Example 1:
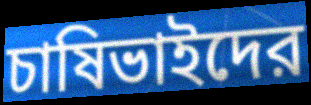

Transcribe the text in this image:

চাষিভাইদের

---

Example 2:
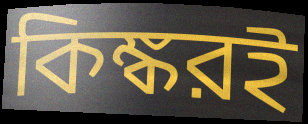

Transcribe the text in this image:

কিঙ্করই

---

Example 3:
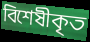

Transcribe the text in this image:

বিশেষীকৃত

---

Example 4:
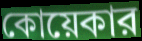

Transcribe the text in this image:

কোয়েকার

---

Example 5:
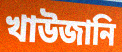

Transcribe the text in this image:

খাউজানি